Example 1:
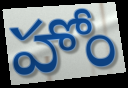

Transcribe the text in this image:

హోం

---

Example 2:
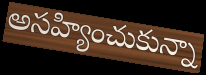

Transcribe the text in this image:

అసహ్యించుకున్నా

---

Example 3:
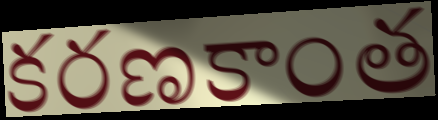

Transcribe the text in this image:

కరణకాంత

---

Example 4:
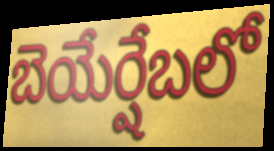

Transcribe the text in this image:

బెయేర్షేబలో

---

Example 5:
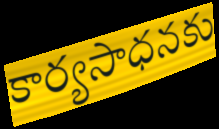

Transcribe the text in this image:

కార్యసాధనకు